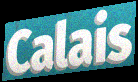
Calais